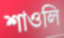
শাওলি